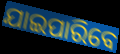
ଯାଇପାରିବେ